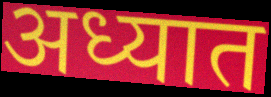
अध्यात